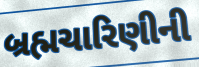
બ્રહ્મચારિણીની